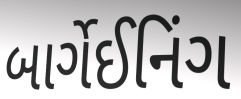
બાર્ગેઈનિંગ